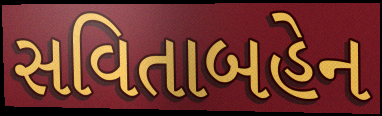
સવિતાબહેન